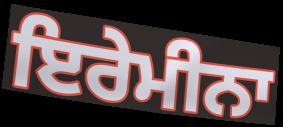
ਇਰੇਮੀਨਾ